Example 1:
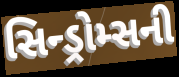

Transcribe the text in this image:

સિન્ડ્રોમ્સની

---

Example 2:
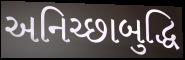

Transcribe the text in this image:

અનિચ્છાબુદ્ધિ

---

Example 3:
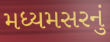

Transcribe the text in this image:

મધ્યમસરનું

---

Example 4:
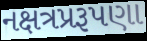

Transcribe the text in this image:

નક્ષત્રપ્રરૂપણા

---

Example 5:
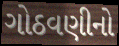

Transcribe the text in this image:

ગોઠવણીનો